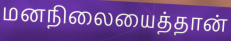
மனநிலையைத்தான்